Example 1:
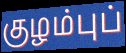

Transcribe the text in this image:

குழம்புப்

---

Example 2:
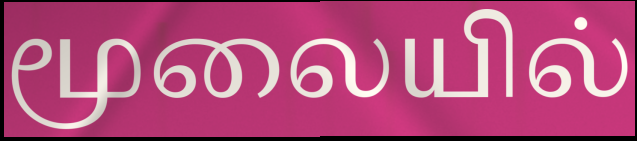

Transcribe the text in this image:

மூலையில்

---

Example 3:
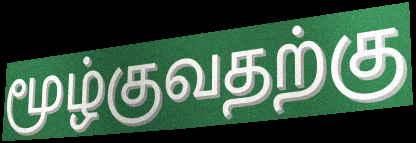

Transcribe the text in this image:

மூழ்குவதற்கு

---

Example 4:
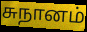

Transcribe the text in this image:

சுநானம்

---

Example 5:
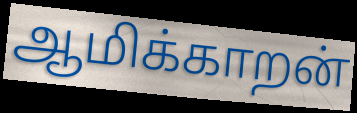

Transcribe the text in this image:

ஆமிக்காறன்